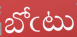
బోఁటు